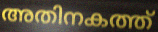
അതിനകത്ത്